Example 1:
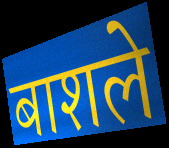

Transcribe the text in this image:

बाशले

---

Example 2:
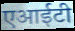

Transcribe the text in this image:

एआईटी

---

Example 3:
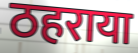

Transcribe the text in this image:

ठहराया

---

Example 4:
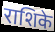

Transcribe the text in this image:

राशिके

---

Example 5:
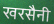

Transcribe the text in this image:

खरसैनी